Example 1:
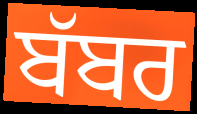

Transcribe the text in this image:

ਬੱਬਰ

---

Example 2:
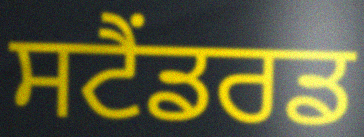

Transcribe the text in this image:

ਸਟੈਂਡਰਡ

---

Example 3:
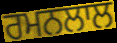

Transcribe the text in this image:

ਰਮਨਲਾਲ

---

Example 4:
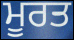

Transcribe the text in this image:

ਮੂਰਤ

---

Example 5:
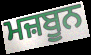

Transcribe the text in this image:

ਮਜ਼ਬੂਨ